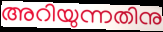
അറിയുന്നതിനു